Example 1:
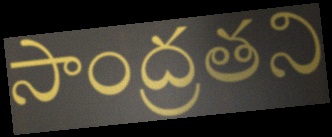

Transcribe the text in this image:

సాంద్రతని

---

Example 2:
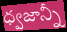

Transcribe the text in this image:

ధ్వజాన్నీ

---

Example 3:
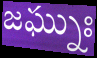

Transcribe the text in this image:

జఘ్నుః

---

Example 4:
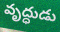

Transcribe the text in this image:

వృద్ధుడు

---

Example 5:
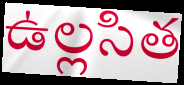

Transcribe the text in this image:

ఉల్లసిత